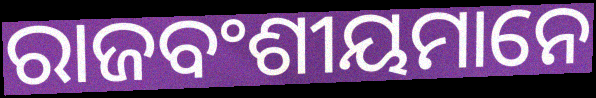
ରାଜବଂଶୀୟମାନେ